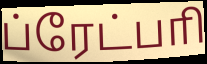
ப்ரேட்பரி